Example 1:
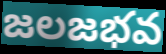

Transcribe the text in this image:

జలజభవ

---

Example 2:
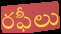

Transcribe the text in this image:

రఫీలు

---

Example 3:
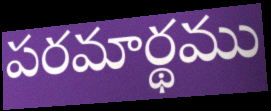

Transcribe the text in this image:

పరమార్థము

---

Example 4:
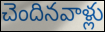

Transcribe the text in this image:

చెందినవాళ్లు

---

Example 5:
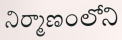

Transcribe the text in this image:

నిర్మాణంలోని